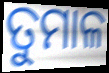
ତୁମାଳ